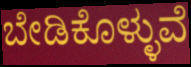
ಬೇಡಿಕೊಳ್ಳುವೆ